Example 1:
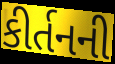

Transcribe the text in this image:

કીર્તનની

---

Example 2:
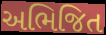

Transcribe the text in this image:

અભિજિત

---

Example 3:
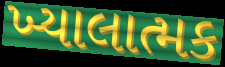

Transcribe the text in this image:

ખ્યાલાત્મક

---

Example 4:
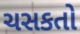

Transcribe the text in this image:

ચસકતો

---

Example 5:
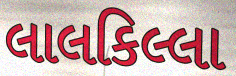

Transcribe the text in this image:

લાલકિલ્લા